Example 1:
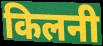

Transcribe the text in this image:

किलनी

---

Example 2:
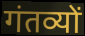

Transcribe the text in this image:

गंतव्यों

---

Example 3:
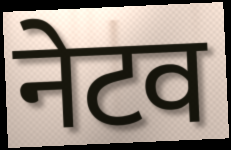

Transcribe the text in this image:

नेटव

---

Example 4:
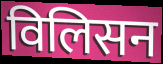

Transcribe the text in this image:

विलिसन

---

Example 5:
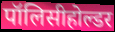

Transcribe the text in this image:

पॉलिसीहोल्डर